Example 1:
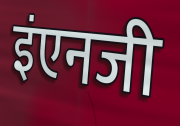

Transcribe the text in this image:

इंएनजी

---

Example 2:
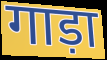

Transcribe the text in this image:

गाड़ा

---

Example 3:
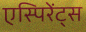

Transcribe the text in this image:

एस्पिरेंट्स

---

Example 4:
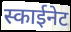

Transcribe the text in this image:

स्काईनेट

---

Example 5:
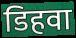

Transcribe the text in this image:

डिहवा